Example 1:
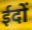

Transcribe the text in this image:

ईदों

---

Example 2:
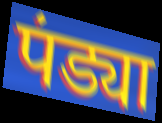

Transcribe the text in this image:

पंड्या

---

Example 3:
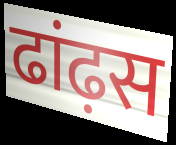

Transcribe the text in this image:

ढांढ़स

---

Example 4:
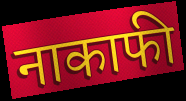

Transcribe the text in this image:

नाकाफी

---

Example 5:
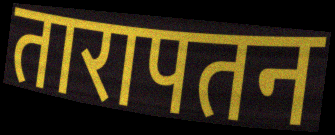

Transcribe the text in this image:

तारापतन